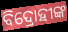
ବିଦ୍ରୋହୀଙ୍କ